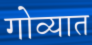
गोव्यात